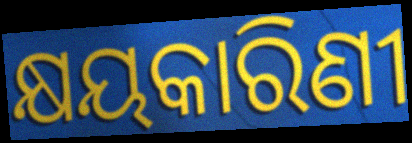
କ୍ଷୟକାରିଣୀ